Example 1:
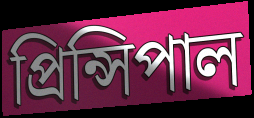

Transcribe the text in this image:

প্রিন্সিপাল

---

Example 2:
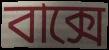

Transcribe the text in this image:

বাক্সে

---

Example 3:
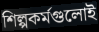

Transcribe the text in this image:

শিল্পকর্মগুলোই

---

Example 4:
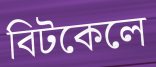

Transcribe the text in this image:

বিটকেলে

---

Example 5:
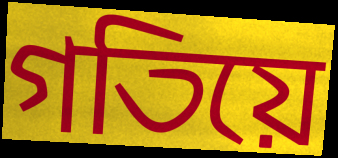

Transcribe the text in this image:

গতিয়ে